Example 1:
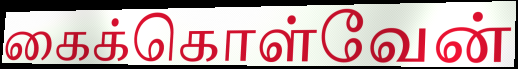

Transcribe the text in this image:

கைக்கொள்வேன்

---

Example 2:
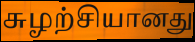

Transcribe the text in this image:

சுழற்சியானது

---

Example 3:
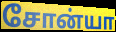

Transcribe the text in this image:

சோன்யா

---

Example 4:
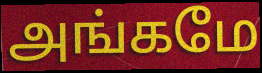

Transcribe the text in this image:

அங்கமே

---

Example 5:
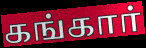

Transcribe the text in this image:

கங்கார்